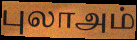
புலாஅம்